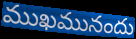
ముఖమునందు